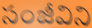
సంజీవిని